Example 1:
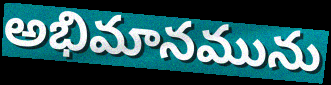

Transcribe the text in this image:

అభిమానమును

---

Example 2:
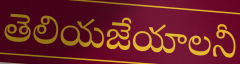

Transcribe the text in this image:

తెలియజేయాలనీ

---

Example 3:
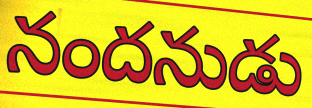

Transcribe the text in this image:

నందనుడు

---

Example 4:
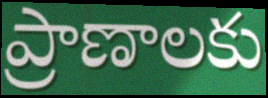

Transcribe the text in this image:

ప్రాణాలకు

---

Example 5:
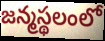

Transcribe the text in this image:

జన్మస్థలంలో